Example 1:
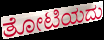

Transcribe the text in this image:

ತೋಟಿಯದು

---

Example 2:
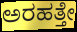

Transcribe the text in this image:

ಅರಹತ್ತೇ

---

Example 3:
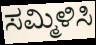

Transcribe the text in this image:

ಸಮ್ಮಿಳಿಸಿ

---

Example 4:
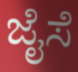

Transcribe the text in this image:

ಜೈಸೆ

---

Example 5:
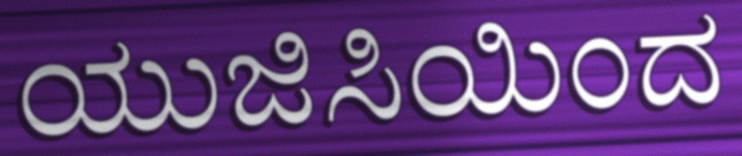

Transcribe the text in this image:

ಯುಜಿಸಿಯಿಂದ